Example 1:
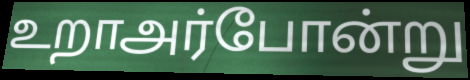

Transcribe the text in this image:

உறாஅர்போன்று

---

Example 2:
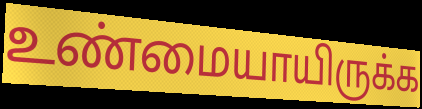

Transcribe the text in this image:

உண்மையாயிருக்க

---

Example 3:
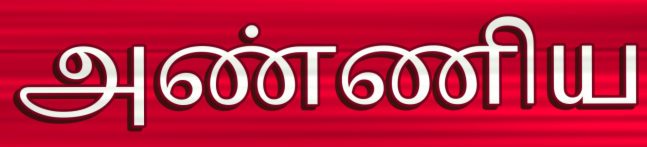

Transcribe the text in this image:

அண்ணிய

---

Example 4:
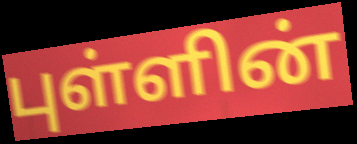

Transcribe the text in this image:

புள்ளின்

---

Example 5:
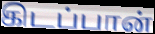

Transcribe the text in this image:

கிடப்பான்